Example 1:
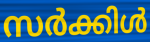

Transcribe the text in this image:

സർക്കിൾ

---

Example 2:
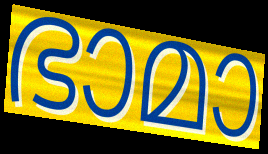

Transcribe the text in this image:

ഭാമാ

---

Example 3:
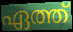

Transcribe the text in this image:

ഏത്ത്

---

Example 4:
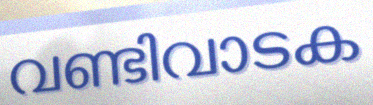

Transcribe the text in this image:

വണ്ടിവാടക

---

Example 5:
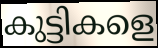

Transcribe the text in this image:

കുട്ടികളെ